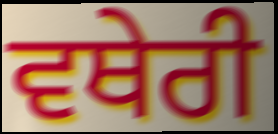
ਵਥੇਰੀ